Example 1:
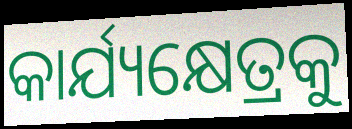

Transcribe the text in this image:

କାର୍ଯ୍ୟକ୍ଷେତ୍ରକୁ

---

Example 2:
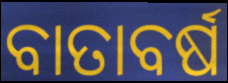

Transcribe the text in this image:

ବାତାବର୍ଷ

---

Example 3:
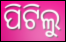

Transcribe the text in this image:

ପିଟିଲୁ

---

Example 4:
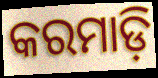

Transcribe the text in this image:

କରମାଡ଼ି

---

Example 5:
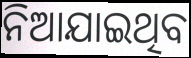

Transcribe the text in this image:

ନିଆଯାଇଥିବ